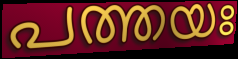
പത്തയഃ